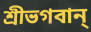
শ্রীভগবান্